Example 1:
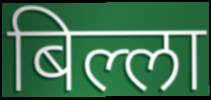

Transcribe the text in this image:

बिल्ला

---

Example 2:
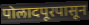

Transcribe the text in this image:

पोलादपूरपासून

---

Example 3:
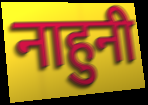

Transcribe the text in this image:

नाहुनी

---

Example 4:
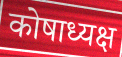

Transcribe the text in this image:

कोषाध्यक्ष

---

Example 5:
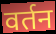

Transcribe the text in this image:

वर्तन